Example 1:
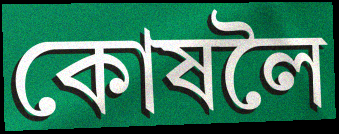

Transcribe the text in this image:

কোষলৈ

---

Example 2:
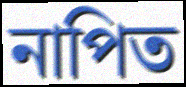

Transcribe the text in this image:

নাপিত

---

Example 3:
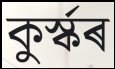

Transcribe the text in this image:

কুৰ্স্কৰ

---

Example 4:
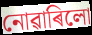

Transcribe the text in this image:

নোৱাৰিলো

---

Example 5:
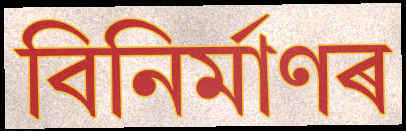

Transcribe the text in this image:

বিনিৰ্মাণৰ